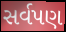
સર્વપણ